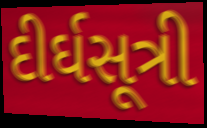
દીર્ઘસૂત્રી